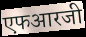
एफआरजी